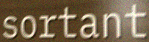
sortant